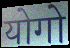
योगो